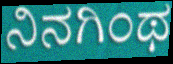
ನಿನಗಿಂಥ